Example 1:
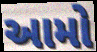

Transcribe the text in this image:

આમો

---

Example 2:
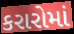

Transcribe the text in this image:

કરારોમાં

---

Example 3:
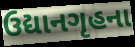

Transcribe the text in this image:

ઉદ્યાનગૃહના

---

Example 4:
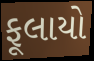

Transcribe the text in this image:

ફૂલાયો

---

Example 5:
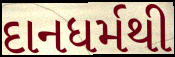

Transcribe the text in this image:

દાનધર્મથી